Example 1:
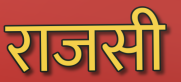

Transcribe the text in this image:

राजसी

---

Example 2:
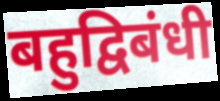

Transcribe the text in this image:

बहुद्विबंधी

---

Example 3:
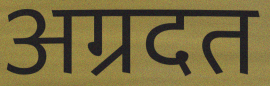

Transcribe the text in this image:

अग्रदत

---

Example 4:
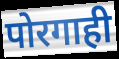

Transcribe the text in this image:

पोरगाही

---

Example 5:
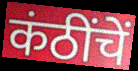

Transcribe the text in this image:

कंठींचें